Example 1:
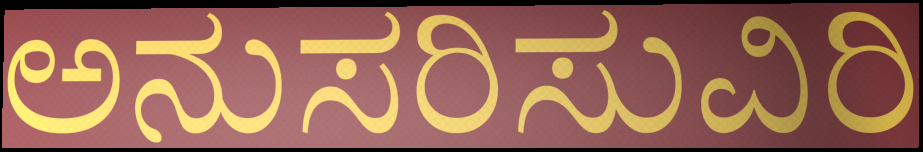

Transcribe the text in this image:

ಅನುಸರಿಸುವಿರಿ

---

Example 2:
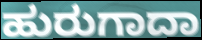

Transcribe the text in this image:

ಹುರುಗಾದಾ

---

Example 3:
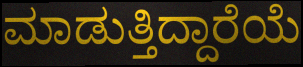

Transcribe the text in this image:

ಮಾಡುತ್ತಿದ್ದಾರೆಯೆ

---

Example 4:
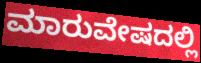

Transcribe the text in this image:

ಮಾರುವೇಷದಲ್ಲಿ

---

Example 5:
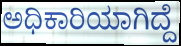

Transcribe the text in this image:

ಅಧಿಕಾರಿಯಾಗಿದ್ದೆ